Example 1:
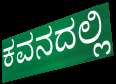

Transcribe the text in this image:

ಕವನದಲ್ಲಿ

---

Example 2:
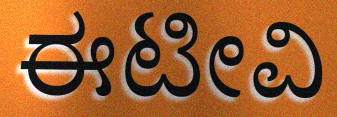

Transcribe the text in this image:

ಈಟೀವಿ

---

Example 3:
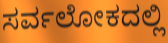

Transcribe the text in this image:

ಸರ್ವಲೋಕದಲ್ಲಿ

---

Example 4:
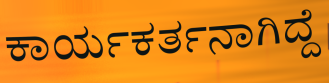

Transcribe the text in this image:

ಕಾರ್ಯಕರ್ತನಾಗಿದ್ದೆ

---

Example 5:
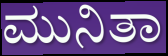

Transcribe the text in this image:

ಮುನಿತಾ